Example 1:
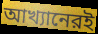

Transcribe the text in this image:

আখ্যানেরই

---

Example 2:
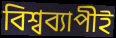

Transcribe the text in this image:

বিশ্বব্যাপীই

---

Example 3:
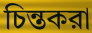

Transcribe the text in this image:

চিন্তকরা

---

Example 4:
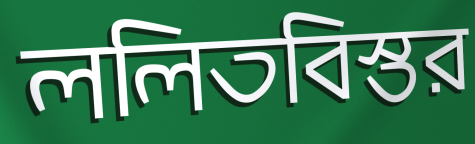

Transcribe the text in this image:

ললিতবিস্তর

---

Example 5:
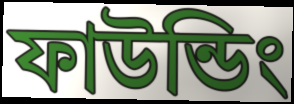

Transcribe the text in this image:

ফাউন্ডিং